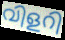
വിളറി